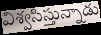
విశ్వసిస్తున్నాడు